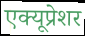
एक्यूप्रेशर